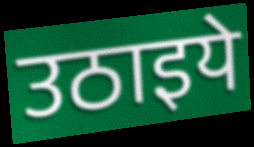
उठाइये